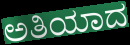
ಅತಿಯಾದ